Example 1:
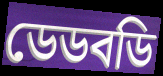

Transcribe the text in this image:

ডেডবডি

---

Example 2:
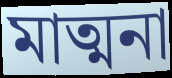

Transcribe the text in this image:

মাত্মনা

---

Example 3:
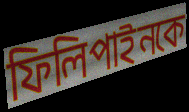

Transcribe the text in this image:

ফিলিপাইনকে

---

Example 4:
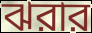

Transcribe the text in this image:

ঝরার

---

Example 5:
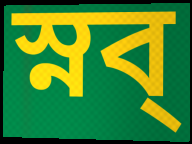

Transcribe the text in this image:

স্নব্